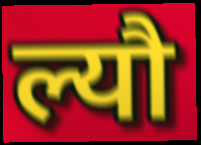
ल्यौ